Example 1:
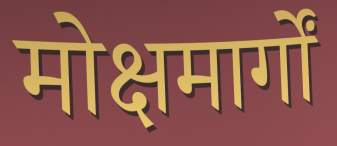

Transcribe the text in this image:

मोक्षमार्गों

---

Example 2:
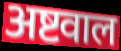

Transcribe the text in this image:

अष्टवाल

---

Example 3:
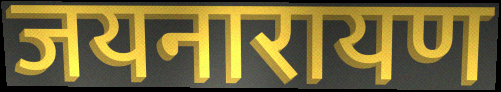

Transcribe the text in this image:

जयनारायण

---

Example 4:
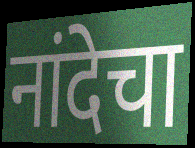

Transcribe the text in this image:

नांदेचा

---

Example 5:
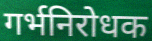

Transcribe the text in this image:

गर्भनिरोधक